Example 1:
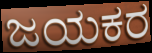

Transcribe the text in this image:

ಜಯಕರ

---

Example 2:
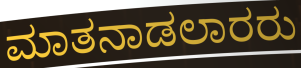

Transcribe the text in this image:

ಮಾತನಾಡಲಾರರು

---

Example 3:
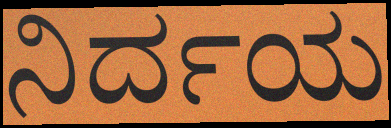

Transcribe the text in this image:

ನಿರ್ದಯ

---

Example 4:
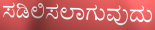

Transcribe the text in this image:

ಸಡಿಲಿಸಲಾಗುವುದು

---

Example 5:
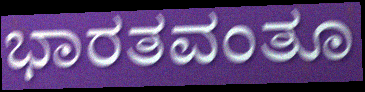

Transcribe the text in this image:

ಭಾರತವಂತೂ